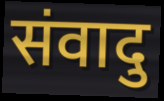
संवादु